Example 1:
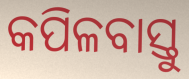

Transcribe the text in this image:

କପିଳବାସ୍ତୁ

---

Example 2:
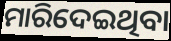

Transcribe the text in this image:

ମାରିଦେଇଥିବା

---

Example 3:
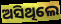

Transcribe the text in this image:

ଅସିଥିଲେ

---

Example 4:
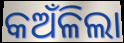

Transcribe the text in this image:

କଅଁଳିଲା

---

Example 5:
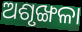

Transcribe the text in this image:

ଅଶୃଙ୍ଖଳା